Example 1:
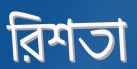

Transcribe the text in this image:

রিশতা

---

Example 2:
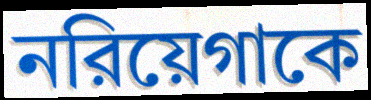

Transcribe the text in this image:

নরিয়েগাকে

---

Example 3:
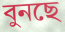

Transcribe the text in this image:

বুনছে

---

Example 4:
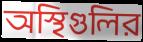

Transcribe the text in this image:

অস্থিগুলির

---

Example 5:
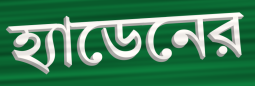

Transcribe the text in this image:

হ্যাডেনের